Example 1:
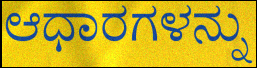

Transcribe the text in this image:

ಆಧಾರಗಳನ್ನು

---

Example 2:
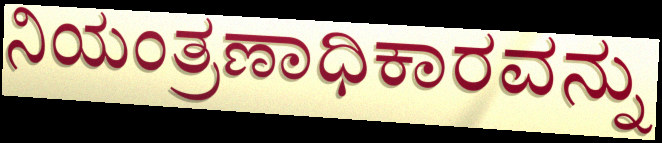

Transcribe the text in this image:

ನಿಯಂತ್ರಣಾಧಿಕಾರವನ್ನು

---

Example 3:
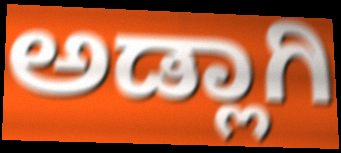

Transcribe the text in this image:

ಅಡ್ಲಾಗಿ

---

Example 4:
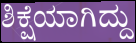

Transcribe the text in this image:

ಶಿಕ್ಷೆಯಾಗಿದ್ದು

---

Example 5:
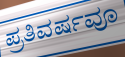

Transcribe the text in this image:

ಪ್ರತಿವರ್ಷವೂ